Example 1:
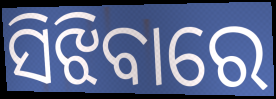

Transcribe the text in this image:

ସିଝିବାରେ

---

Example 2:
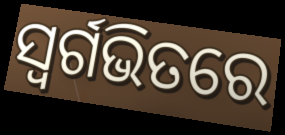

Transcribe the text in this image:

ସ୍ଵର୍ଗଭିତରେ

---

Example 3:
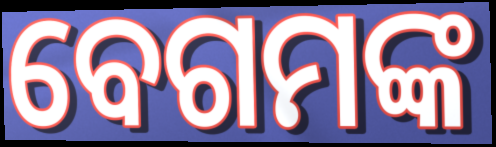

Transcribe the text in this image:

ବେଗମଙ୍କ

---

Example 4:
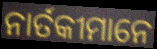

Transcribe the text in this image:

ନାର୍ତକୀମାନେ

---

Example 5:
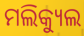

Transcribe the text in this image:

ମଲିକ୍ୟୁଲ